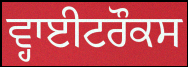
ਵ੍ਹਾਈਟਰੌਕਸ